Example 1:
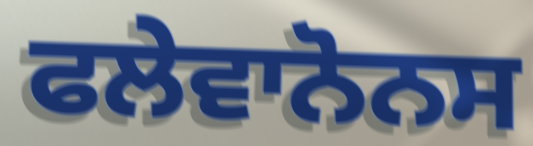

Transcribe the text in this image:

ਫਲੇਵਾਨੋਨਸ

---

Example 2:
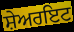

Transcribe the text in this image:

ਸ਼ੇਅਰਇਟ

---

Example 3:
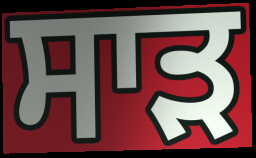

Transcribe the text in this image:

ਸਾਡ਼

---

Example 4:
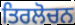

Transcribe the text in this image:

ਤਿਰਲੋਚਨ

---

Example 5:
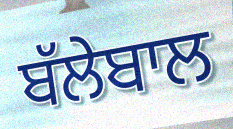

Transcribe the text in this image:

ਬੱਲੇਬਾਲ